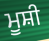
ਮੂਸ਼ੀ